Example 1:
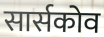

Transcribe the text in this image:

सार्सकोव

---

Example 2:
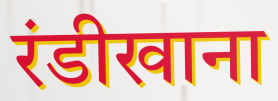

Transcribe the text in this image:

रंडीखाना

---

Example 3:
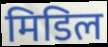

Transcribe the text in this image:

मिडिल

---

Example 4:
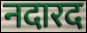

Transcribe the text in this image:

नदारद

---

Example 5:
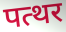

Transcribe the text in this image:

पत्थर